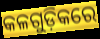
କଳଗୁଡ଼ିକରେ